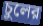
চুলের